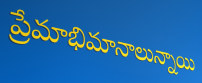
ప్రేమాభిమానాలున్నాయి